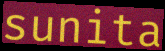
sunita